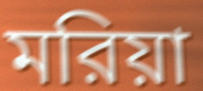
মরিয়া